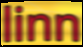
linn